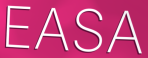
EASA